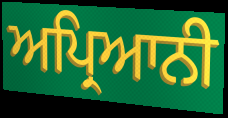
ਅਪ੍ਰਿਆਨੀ